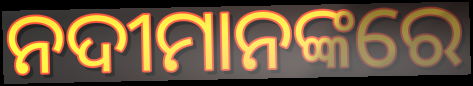
ନଦୀମାନଙ୍କରେ